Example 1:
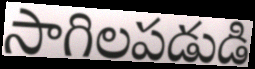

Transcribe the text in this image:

సాగిలపడుడి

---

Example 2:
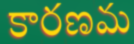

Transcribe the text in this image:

కారణమ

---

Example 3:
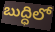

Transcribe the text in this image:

బుద్ధిలో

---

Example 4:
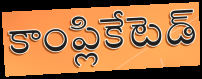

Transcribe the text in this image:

కాంప్లికేటెడ్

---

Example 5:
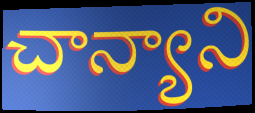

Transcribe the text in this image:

చాన్యాని